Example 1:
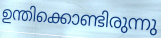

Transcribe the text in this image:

ഉന്തിക്കൊണ്ടിരുന്നു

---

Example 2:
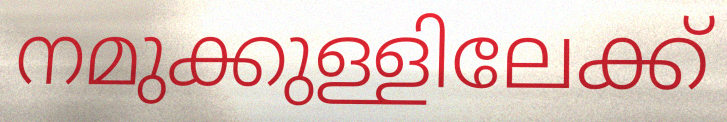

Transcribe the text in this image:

നമുക്കുള്ളിലേക്ക്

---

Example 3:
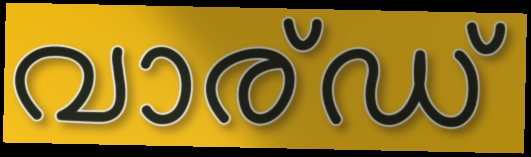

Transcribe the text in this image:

വാര്ഡ്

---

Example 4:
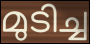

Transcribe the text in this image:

മുടിച്ച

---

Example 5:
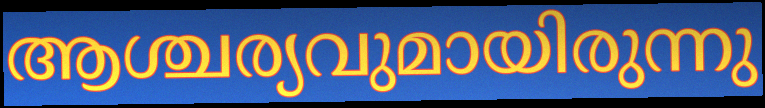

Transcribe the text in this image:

ആശ്ചര്യവുമായിരുന്നു